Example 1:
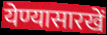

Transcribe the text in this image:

येण्यासारखें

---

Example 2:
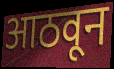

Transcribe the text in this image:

आठवून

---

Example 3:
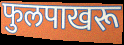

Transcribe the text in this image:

फुलपाखरू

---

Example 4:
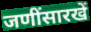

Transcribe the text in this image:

जणींसारखें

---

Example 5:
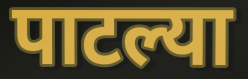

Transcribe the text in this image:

पाटल्या